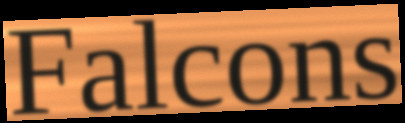
Falcons